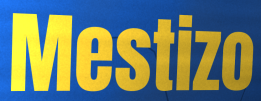
Mestizo